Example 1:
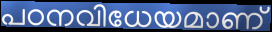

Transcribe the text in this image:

പഠനവിധേയമാണ്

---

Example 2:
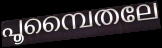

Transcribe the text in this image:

പൂമ്പൈതലേ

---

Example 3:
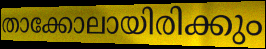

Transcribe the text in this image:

താക്കോലായിരിക്കും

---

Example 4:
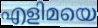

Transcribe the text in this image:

എളിമയെ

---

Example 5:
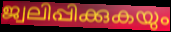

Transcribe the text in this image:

ജ്വലിപ്പിക്കുകയും